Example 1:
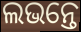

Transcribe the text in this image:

ଲଭନ୍ତେ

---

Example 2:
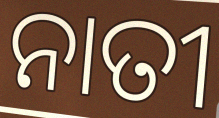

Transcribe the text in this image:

ନାତୀ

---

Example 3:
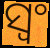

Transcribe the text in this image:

ସ୍ୱଂ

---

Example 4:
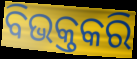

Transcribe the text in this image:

ବିଭକ୍ତକରି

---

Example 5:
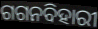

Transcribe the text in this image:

ଗଗନବିହାରୀ